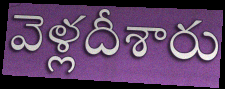
వెళ్లదీశారు